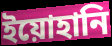
ইয়োহানি